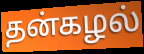
தன்கழல்